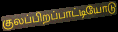
குலப்பிறப்பாட்டியோடு